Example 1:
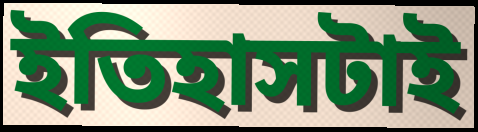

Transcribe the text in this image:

ইতিহাসটাই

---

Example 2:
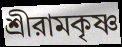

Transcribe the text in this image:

শ্রীরামকৃষ্ণ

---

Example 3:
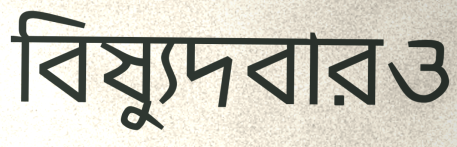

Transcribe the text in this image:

বিষ্যুদবারও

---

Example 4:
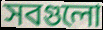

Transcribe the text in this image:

সবগুলো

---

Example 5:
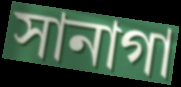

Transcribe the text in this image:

সানাগা